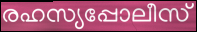
രഹസ്യപ്പോലീസ്